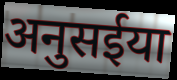
अनुसईया